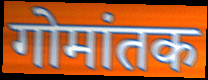
गोमांतक